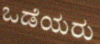
ಒಡೆಯರು